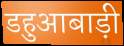
डहुआबाड़ी